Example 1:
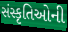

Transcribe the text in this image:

સંસ્કૃતિઓની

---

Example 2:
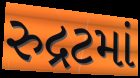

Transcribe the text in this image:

રુદ્રટમાં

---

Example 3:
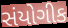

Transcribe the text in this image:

સંયોગીક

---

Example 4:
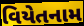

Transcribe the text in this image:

વિયેતનામ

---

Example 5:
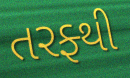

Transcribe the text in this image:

તરફ્થી